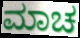
ಮಾಚ